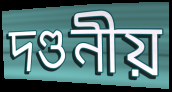
দণ্ডনীয়